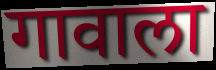
गावाला